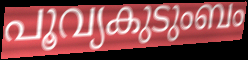
പൂവ്യകുടുംബം